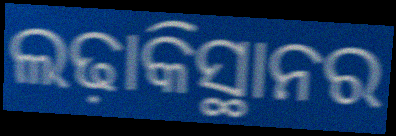
ଲଢ଼ାକିସ୍ଥାନର